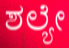
ಶಲ್ಯೇ